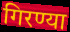
गिरण्या